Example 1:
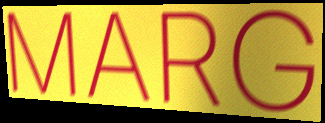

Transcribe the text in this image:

MARG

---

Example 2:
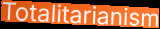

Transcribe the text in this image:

Totalitarianism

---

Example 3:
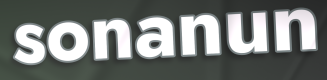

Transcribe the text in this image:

sonanun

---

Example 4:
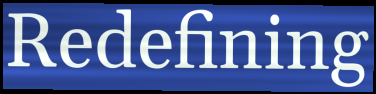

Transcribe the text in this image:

Redefining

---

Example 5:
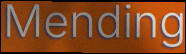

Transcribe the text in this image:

Mending